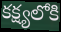
కక్ష్యలోకి